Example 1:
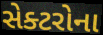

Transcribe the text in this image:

સેક્ટરોના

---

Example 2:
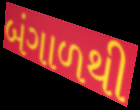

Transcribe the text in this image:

બંગાળથી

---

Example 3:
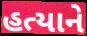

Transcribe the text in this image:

હત્યાને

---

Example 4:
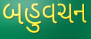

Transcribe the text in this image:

બહુવચન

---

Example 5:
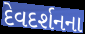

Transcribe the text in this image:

દેવદર્શનના